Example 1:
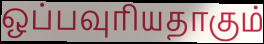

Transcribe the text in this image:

ஒப்பவுரியதாகும்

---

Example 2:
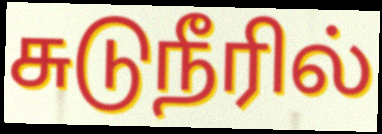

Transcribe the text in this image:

சுடுநீரில்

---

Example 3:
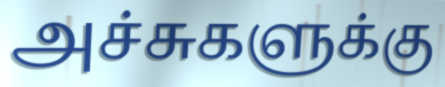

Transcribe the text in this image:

அச்சுகளுக்கு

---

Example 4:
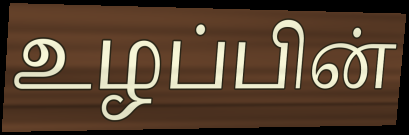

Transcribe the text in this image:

உழப்பின்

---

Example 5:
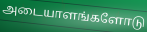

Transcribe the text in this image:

அடையாளங்களோடு